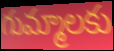
గుమ్మాలకు